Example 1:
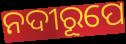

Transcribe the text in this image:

ନଦୀରୂପେ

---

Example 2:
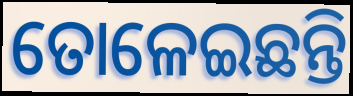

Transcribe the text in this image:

ତୋଳେଇଛନ୍ତି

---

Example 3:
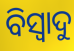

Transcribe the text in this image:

ବିସ୍ୱାଦୁ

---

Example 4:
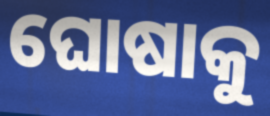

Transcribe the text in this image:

ଘୋଷାକୁ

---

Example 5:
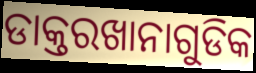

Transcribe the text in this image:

ଡାକ୍ତରଖାନାଗୁଡିକ